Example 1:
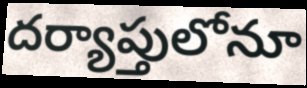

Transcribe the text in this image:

దర్యాప్తులోనూ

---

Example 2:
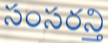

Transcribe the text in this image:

సంసరన్తి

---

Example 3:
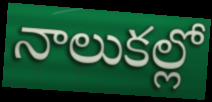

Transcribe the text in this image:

నాలుకల్లో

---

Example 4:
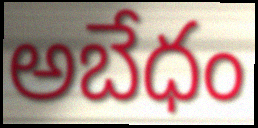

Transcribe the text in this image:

అబేధం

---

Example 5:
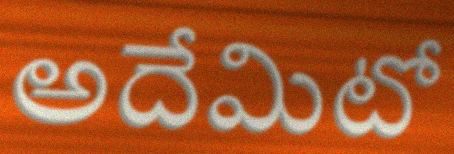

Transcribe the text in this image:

అదేమిటో